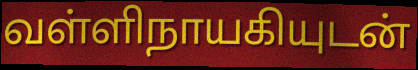
வள்ளிநாயகியுடன்